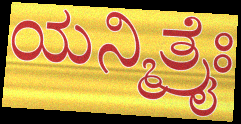
ಯನ್ಮಿತ್ರೈಃ